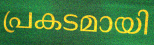
പ്രകടമായി